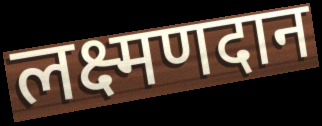
लक्ष्मणदान